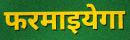
फरमाइयेगा